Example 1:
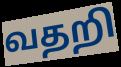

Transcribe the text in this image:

வதறி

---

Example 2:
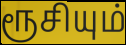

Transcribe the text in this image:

ரூசியும்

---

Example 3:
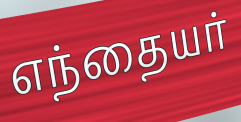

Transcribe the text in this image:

எந்தையர்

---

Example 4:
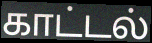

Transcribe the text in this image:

காட்டல்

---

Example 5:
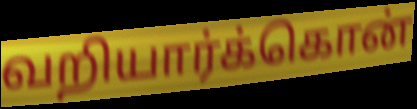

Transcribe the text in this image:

வறியார்க்கொன்